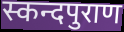
स्कन्दपुराण